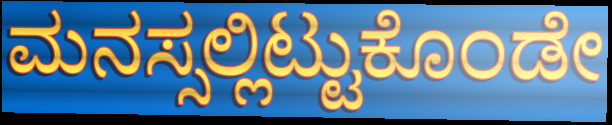
ಮನಸ್ಸಲ್ಲಿಟ್ಟುಕೊಂಡೇ